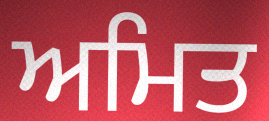
ਅਮਿਤ